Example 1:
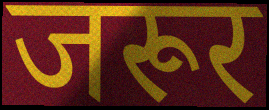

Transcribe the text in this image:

जरूर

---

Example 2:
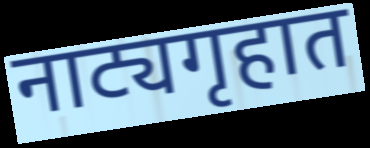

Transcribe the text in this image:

नाट्यगृहात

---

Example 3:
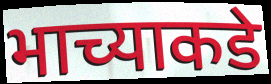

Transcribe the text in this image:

भाच्याकडे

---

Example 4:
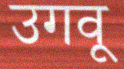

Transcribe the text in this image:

उगवू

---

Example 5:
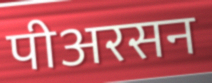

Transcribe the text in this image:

पीअरसन